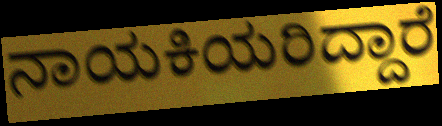
ನಾಯಕಿಯರಿದ್ದಾರೆ